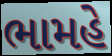
ભામહે